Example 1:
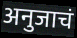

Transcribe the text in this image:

अनुजाचं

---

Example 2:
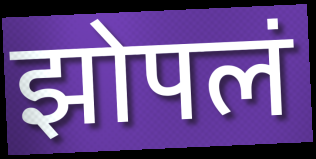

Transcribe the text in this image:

झोपलं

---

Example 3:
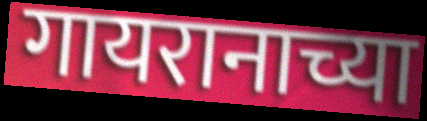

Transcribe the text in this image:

गायरानाच्या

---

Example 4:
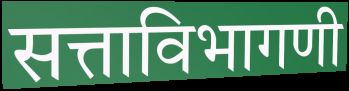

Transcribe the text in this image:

सत्ताविभागणी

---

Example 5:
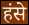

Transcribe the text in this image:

हंसे